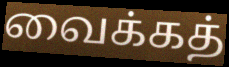
வைக்கத்